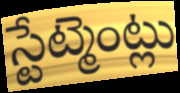
స్టేట్మెంట్లు